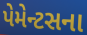
પેમેન્ટસના